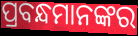
ପ୍ରବନ୍ଧମାନଙ୍କର